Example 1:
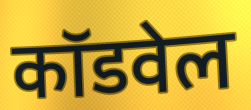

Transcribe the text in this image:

कॉडवेल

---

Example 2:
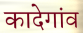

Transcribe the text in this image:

कादेगांव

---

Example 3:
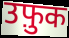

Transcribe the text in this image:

उफ़ुक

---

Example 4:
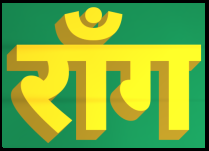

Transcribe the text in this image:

रॉंग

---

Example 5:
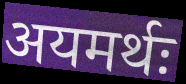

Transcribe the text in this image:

अयमर्थः